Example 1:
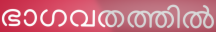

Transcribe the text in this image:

ഭാഗവതത്തിൽ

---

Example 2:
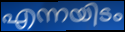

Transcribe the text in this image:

എന്നയിടം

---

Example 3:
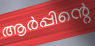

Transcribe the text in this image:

ആർപ്പിന്റെ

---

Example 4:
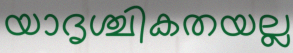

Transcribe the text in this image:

യാദൃശ്ചികതയല്ല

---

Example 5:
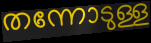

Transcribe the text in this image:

തന്നോടുള്ള